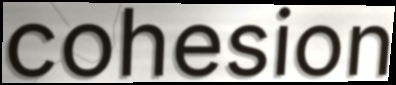
cohesion